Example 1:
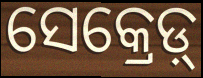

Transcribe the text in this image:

ସେକ୍ରେଡ଼୍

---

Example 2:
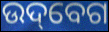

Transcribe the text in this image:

ଉଦ୍‌ବେଗ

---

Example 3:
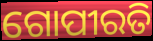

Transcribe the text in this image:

ଗୋପୀରତି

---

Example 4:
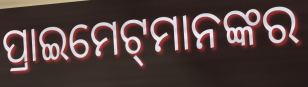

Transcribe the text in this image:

ପ୍ରାଇମେଟ୍‌ମାନଙ୍କର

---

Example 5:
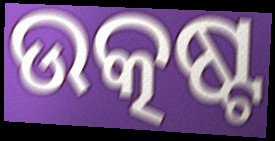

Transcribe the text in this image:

ଉତ୍କଷ୍ଟ